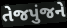
તેજપુંજને